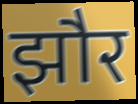
झौर